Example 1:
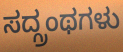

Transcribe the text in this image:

ಸದ್ಗ್ರಂಥಗಳು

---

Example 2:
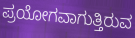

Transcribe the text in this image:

ಪ್ರಯೋಗವಾಗುತ್ತಿರುವ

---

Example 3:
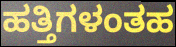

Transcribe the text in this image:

ಹತ್ತಿಗಳಂತಹ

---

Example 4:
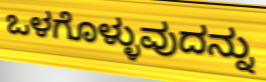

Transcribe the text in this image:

ಒಳಗೊಳ್ಳುವುದನ್ನು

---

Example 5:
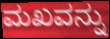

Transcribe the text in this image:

ಮಖವನ್ನು